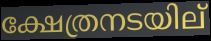
ക്ഷേത്രനടയില്